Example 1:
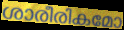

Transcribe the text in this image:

ശാരീരികമോ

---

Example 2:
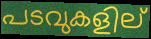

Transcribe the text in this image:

പടവുകളില്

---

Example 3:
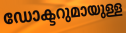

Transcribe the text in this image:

ഡോക്ടറുമായുള്ള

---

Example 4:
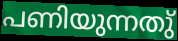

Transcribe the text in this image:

പണിയുന്നതു്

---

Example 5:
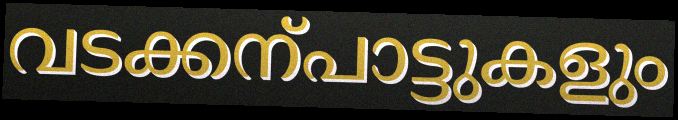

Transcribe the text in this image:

വടക്കന്പാട്ടുകളും